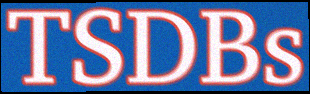
TSDBs